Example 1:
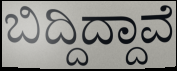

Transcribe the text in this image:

ಬಿದ್ದಿದ್ದಾವೆ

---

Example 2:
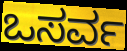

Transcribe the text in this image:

ಒಸರ್ವ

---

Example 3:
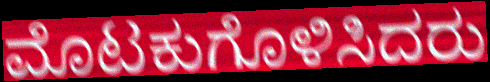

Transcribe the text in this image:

ಮೊಟಕುಗೊಳಿಸಿದರು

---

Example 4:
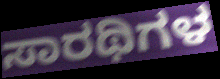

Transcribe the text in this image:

ಸಾರಥಿಗಳ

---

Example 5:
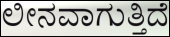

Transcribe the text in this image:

ಲೀನವಾಗುತ್ತಿದೆ